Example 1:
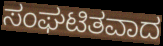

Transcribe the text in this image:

ಸಂಘಟಿತವಾದ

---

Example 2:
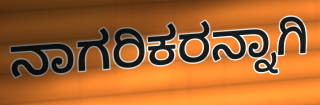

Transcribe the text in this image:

ನಾಗರಿಕರನ್ನಾಗಿ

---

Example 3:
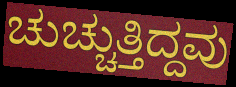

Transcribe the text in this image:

ಚುಚ್ಚುತ್ತಿದ್ದವು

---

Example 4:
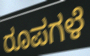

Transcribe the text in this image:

ರೂಪಗಳೆ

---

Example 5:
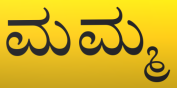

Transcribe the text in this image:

ಮಮ್ಮ